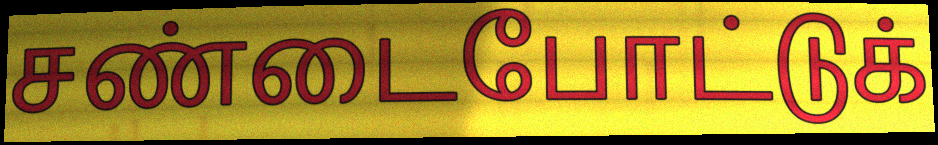
சண்டைபோட்டுக்